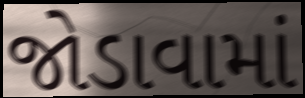
જોડાવામાં